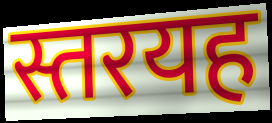
स्तरयह